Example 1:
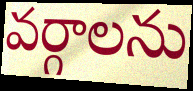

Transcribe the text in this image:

వర్గాలను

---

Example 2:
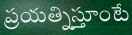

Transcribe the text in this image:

ప్రయత్నిస్తూంటే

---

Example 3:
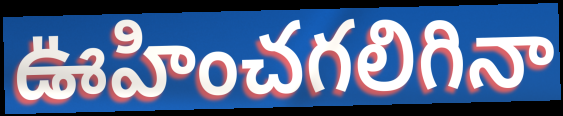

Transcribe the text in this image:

ఊహించగలిగినా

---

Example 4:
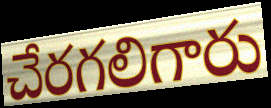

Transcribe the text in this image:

చేరగలిగారు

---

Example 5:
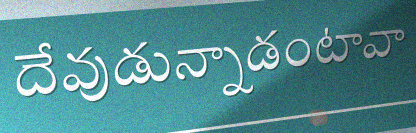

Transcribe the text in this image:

దేవుడున్నాడంటావా